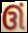
ઊં